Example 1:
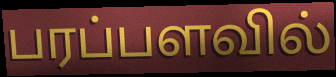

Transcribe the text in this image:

பரப்பளவில்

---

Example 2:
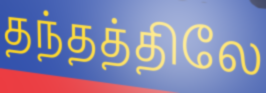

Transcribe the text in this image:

தந்தத்திலே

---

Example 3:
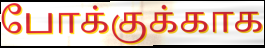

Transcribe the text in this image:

போக்குக்காக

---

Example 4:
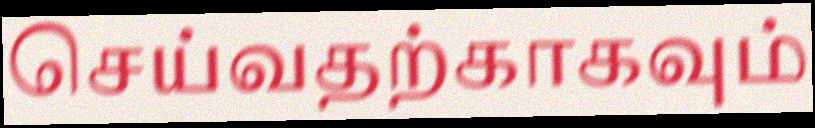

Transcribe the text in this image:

செய்வதற்காகவும்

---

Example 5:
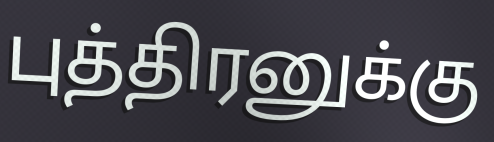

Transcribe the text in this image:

புத்திரனுக்கு